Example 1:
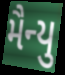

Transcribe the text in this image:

મૈન્યુ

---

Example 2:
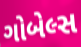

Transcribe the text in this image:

ગોબેલ્સ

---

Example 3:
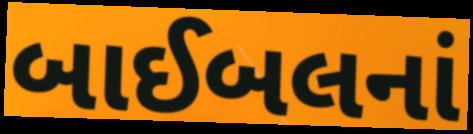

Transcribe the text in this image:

બાઈબલનાં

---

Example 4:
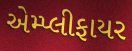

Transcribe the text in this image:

એમ્પ્લીફાયર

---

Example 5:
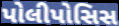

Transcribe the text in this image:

પોલીપોસિસ